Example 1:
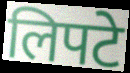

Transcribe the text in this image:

लिपटे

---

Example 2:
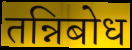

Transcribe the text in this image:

तन्निबोध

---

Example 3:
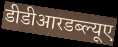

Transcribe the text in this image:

डीडीआरडब्ल्यूए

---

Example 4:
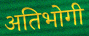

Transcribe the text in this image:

अतिभोगी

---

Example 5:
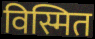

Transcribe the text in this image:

विस्मित